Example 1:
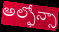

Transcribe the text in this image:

అల్ఫోన్సా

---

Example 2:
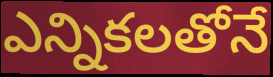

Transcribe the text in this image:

ఎన్నికలతోనే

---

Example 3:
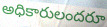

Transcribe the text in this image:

అధికారులందరూ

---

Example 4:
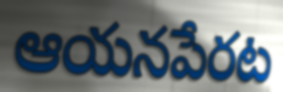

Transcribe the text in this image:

ఆయనపేరట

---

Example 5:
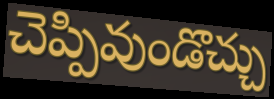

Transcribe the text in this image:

చెప్పివుండొచ్చు